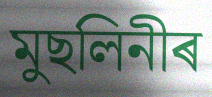
মুছলিনীৰ